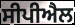
ਸੀਪੀਐਲ